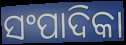
ସଂପାଦିକା